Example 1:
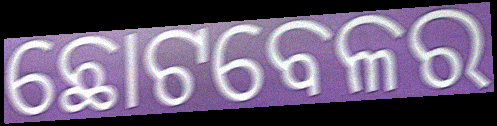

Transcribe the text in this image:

ଛୋଟବେଳର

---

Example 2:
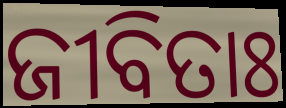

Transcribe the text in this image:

ଜୀବିତାଃ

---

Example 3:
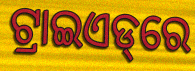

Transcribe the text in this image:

ଟ୍ରାଇଏଡ୍‌ରେ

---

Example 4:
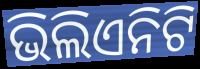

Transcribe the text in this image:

ଭିଲିଏନିଟି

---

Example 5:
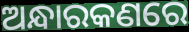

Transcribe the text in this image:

ଅନ୍ଧାରକଣରେ